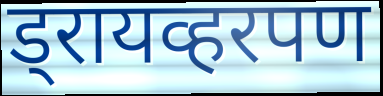
ड्रायव्हरपण